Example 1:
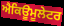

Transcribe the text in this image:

ਐਕਿਊਮੂਲੇਟਰ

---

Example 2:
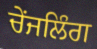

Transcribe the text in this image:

ਚੇਂਜਲਿੰਗ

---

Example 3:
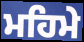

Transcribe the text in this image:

ਮਹਿਮੇ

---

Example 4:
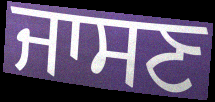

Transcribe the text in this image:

ਜਾਸਣ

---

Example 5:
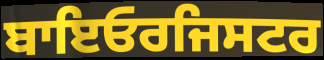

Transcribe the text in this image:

ਬਾਇਓਰਜਿਸਟਰ